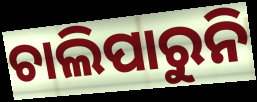
ଚାଲିପାରୁନି